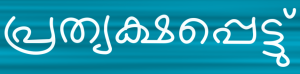
പ്രത്യക്ഷപ്പെട്ടു്